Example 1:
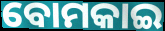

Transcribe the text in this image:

ବୋମକାଇ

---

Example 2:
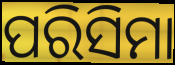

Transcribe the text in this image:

ପରିସିମା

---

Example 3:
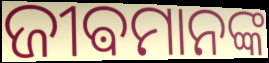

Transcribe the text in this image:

ଜୀଵମାନଙ୍କ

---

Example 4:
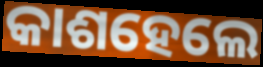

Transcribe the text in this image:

କାଶହେଲେ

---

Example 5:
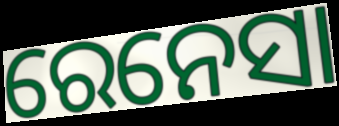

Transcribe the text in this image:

ରେନେସା